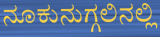
ನೂಕುನುಗ್ಗಲಿನಲ್ಲಿ